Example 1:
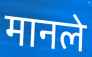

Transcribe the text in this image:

मानले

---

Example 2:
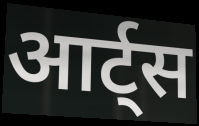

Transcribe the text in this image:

आर्ट्स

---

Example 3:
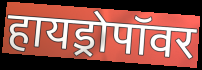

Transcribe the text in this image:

हायड्रोपॉवर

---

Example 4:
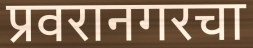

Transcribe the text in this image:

प्रवरानगरचा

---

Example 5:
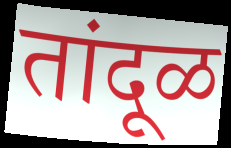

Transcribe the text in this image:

तांदूळ